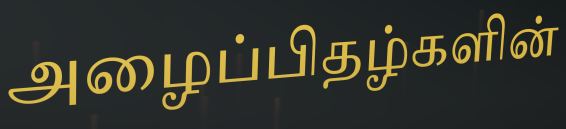
அழைப்பிதழ்களின்